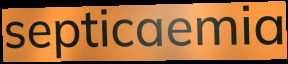
septicaemia